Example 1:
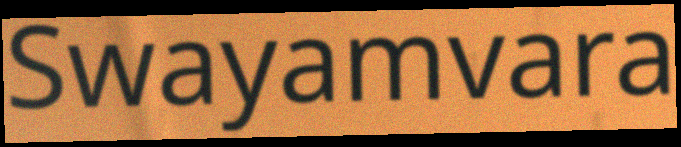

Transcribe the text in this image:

Swayamvara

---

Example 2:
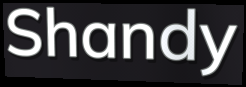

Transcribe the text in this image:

Shandy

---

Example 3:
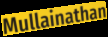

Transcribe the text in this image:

Mullainathan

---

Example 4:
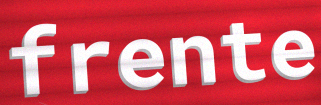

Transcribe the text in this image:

frente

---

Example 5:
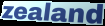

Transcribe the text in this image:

zealand